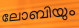
ലോബിയും